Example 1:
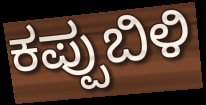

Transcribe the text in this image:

ಕಪ್ಪುಬಿಳಿ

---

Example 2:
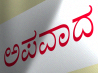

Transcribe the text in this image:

ಅಪವಾದ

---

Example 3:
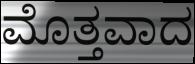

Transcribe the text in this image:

ಮೊತ್ತವಾದ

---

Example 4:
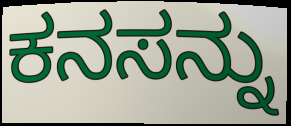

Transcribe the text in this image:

ಕನಸನ್ನು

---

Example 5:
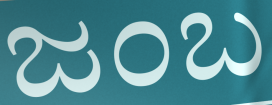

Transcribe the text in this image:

ಜಂಬ